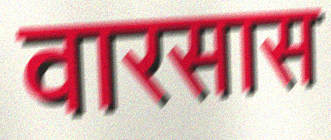
वारसास